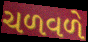
ચળવળે